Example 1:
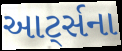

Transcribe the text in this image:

આર્ટ્સના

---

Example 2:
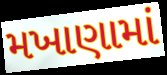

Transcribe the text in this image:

મખાણામાં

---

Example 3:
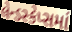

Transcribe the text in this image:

લેન્ડસ્કેપ્સમાં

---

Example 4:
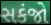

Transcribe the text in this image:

સકંજો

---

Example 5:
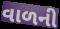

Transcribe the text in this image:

વાળની